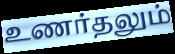
உணர்தலும்